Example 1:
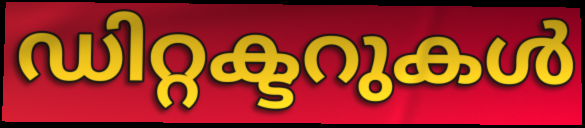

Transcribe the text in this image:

ഡിറ്റക്ടറുകൾ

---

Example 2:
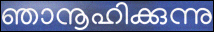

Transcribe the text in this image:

ഞാനൂഹിക്കുന്നു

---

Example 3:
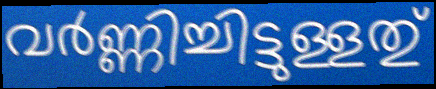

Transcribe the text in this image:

വർണ്ണിച്ചിട്ടുള്ളതു്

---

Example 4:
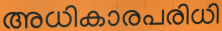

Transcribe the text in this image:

അധികാരപരിധി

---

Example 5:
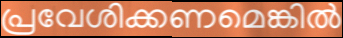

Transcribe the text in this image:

പ്രവേശിക്കണമെങ്കിൽ